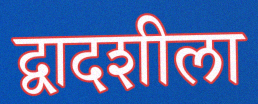
द्वादशीला